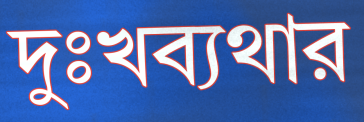
দুঃখব্যথার